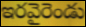
ఇరవైరెండు